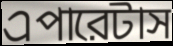
এপারেটাস